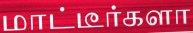
மாட்டீர்களா